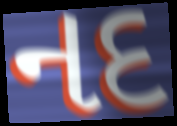
નદ